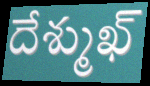
దేశ్ముఖ్